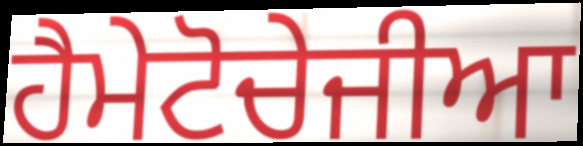
ਹੈਮੇਟੋਚੇਜੀਆ